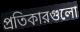
প্রতিকারগুলো